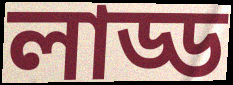
লাড্ড